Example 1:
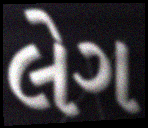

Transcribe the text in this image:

લેગ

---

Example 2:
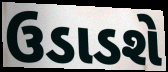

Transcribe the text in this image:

ઉડાડશે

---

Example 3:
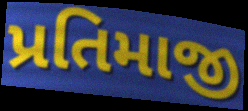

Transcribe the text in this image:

પ્રતિમાજી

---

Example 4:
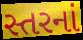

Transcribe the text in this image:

સ્તરનાં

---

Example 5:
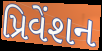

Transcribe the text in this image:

પ્રિવેંશન